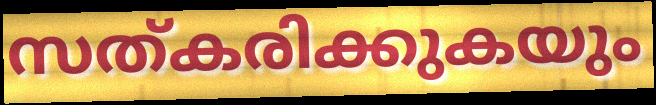
സത്കരിക്കുകയും